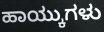
ಹಾಯ್ಕುಗಳು